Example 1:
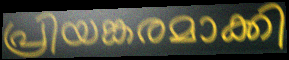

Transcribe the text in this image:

പ്രിയങ്കരമാക്കി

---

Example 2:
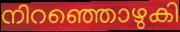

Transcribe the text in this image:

നിറഞ്ഞൊഴുകി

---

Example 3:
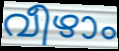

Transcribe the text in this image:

വീഴാം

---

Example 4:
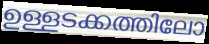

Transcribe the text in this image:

ഉള്ളടക്കത്തിലോ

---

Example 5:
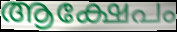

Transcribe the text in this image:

ആക്ഷേപം